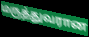
மருத்துவரான